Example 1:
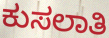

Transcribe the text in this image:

ಕುಸಲಾತಿ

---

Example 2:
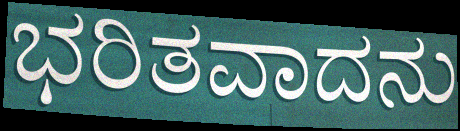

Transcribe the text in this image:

ಭರಿತವಾದನು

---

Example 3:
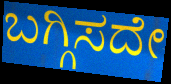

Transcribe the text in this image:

ಬಗ್ಗಿಸದೇ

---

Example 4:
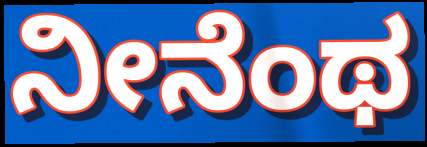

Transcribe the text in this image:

ನೀನೆಂಥ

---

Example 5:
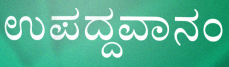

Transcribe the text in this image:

ಉಪದ್ದವಾನಂ